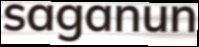
saganun